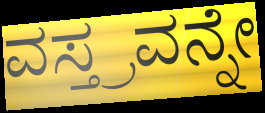
ವಸ್ತ್ರವನ್ನೇ